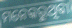
ମନେକରୁଥିବା